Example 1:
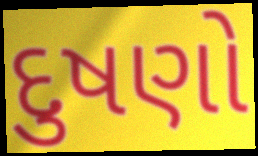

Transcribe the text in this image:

દુષણો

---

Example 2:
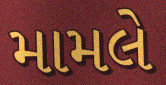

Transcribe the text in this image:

મામલે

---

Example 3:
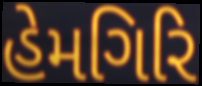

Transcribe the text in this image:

હેમગિરિ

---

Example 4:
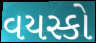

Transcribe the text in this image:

વયસ્કો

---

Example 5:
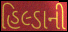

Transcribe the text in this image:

હિલ્ડાની